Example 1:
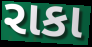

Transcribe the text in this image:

રાકા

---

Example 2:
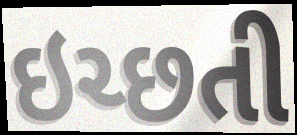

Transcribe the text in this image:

ઇચ્છતી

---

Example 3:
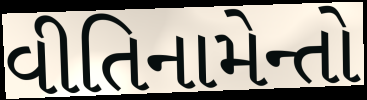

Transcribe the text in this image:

વીતિનામેન્તો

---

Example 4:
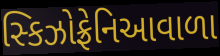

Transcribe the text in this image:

સ્કિઝોફ્રેનિઆવાળા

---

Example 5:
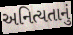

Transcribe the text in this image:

અનિત્યતાનું